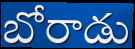
బోరాడు